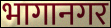
भागानगर